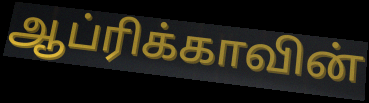
ஆப்ரிக்காவின்